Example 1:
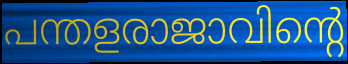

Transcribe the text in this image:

പന്തളരാജാവിന്റെ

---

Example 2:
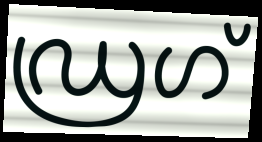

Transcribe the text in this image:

ഡ്രഗ്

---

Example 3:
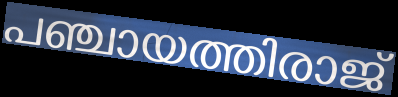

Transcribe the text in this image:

പഞ്ചായത്തിരാജ്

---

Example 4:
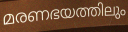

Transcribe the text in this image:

മരണഭയത്തിലും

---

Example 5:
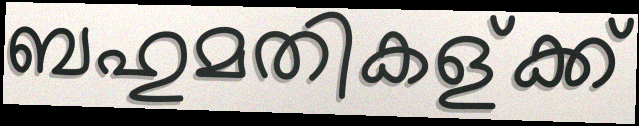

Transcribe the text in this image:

ബഹുമതികള്ക്ക്